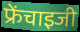
फ्रेंचाइजी